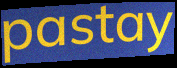
pastay